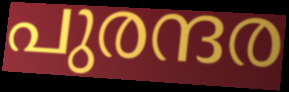
പുരന്ദര